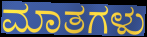
ಮಾತಗಳು